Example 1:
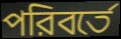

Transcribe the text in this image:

পরিবর্তে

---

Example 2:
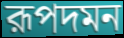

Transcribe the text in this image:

রূপদমন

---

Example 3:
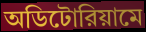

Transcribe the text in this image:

অডিটোরিয়ামে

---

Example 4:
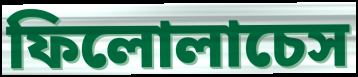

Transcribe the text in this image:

ফিলোলাচেস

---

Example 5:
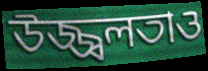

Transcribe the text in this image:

উজ্জ্বলতাও